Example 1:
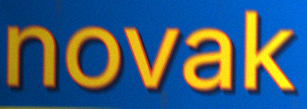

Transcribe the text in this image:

novak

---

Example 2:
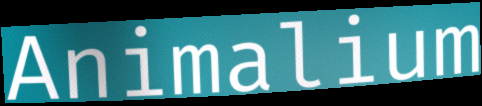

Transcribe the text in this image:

Animalium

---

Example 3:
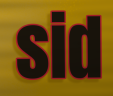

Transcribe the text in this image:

sid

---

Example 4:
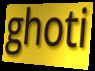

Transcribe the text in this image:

ghoti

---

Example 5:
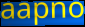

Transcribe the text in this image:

aapno